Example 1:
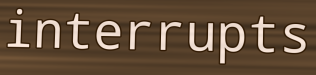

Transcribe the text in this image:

interrupts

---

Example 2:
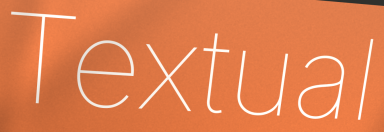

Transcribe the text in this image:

Textual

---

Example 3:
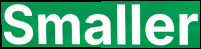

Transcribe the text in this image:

Smaller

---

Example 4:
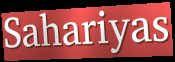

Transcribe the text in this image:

Sahariyas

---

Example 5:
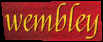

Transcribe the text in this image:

wembley